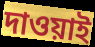
দাওয়াই